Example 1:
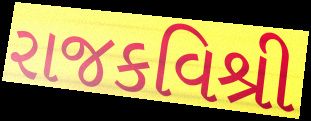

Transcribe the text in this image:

રાજકવિશ્રી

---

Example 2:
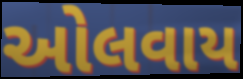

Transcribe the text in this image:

ઓલવાય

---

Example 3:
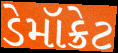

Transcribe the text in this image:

ડેમૉક્રેટ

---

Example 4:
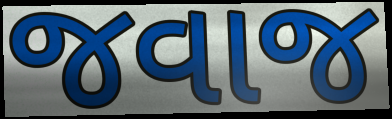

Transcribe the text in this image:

જવાજ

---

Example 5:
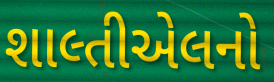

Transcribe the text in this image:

શાલ્તીએલનો